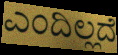
ಎಂದಿಲ್ಲದೆ